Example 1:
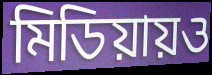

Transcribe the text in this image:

মিডিয়ায়ও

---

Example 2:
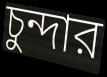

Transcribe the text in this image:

চুন্দার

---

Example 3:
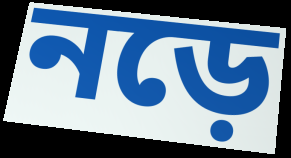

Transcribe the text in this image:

নড়ে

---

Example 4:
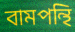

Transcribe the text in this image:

বামপন্থি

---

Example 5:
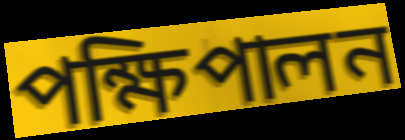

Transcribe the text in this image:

পক্ষিপালন